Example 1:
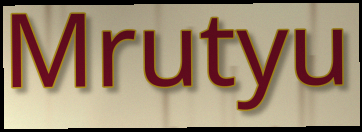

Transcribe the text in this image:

Mrutyu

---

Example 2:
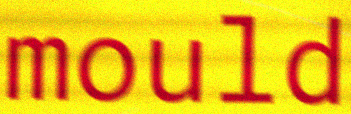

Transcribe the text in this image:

mould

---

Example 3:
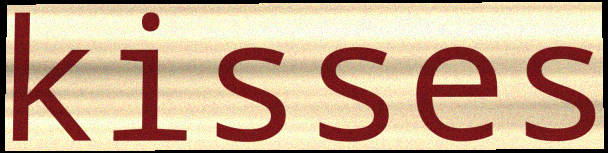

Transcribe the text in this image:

kisses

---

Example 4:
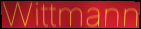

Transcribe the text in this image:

Wittmann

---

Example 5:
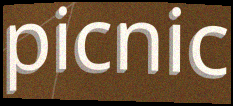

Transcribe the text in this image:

picnic